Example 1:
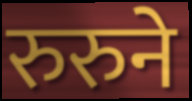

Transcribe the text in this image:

रुरुने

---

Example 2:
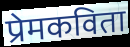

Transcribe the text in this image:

प्रेमकविता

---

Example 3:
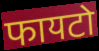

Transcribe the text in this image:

फायटो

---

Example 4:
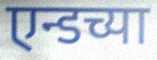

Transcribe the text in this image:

एन्डच्या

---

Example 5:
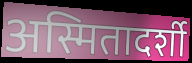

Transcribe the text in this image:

अस्मितादर्शी